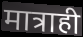
मात्राही